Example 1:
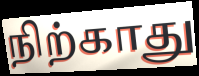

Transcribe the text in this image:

நிற்காது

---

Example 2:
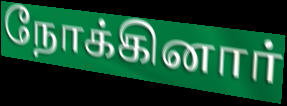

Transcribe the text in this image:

நோக்கினார்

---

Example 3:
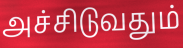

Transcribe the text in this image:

அச்சிடுவதும்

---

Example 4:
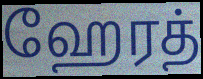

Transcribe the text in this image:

ஹேரத்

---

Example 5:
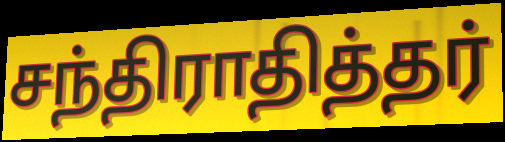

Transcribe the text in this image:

சந்திராதித்தர்